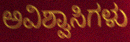
ಅವಿಶ್ವಾಸಿಗಳು